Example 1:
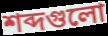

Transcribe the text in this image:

শব্দগুলো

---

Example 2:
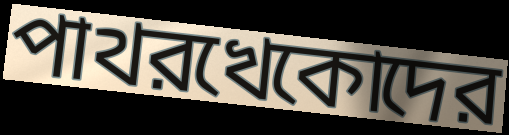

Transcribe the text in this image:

পাথরখেকোদের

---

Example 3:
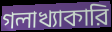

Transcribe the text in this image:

গলাখ্যাকারি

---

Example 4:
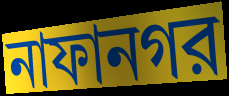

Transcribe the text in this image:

নাফানগর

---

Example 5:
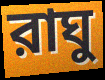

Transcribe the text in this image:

রাঘু